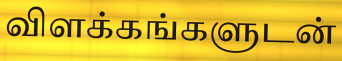
விளக்கங்களுடன்